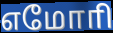
எமோரி